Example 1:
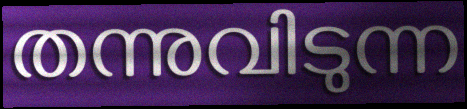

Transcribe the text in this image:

തന്നുവിടുന്ന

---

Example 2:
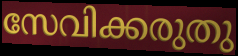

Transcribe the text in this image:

സേവിക്കരുതു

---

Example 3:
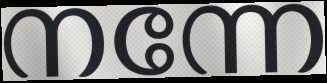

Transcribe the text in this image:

നന്നേ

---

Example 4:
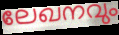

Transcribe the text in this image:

ലേഖനവും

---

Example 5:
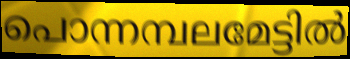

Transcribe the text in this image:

പൊന്നമ്പലമേട്ടിൽ